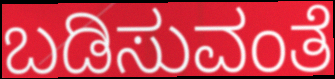
ಬಡಿಸುವಂತೆ